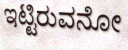
ಇಟ್ಟಿರುವನೋ